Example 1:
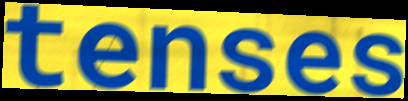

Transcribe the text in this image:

tenses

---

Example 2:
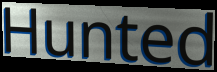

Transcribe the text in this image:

Hunted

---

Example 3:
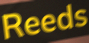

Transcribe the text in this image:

Reeds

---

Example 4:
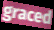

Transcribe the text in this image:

graced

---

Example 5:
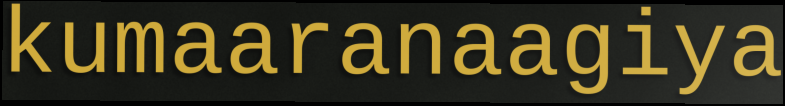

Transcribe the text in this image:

kumaaranaagiya